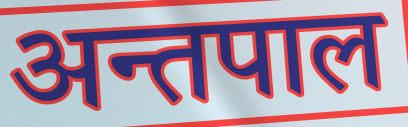
अन्तपाल